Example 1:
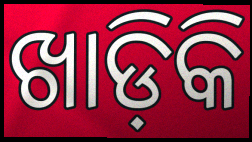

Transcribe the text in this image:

ଖାଡ଼ିକି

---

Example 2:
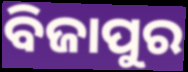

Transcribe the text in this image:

ବିଜାପୁର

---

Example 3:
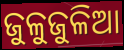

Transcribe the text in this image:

ଜୁଳୁଜୁଳିଆ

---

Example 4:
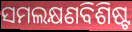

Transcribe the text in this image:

ସମଲକ୍ଷଣବିଶିଷ୍ଟ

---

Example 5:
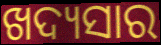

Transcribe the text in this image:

ଖଦ୍ୟସାର